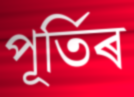
পূৰ্তিৰ